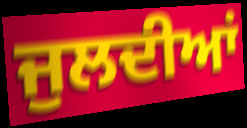
ਜੁਲਦੀਆਂ